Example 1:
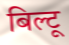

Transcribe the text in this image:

बिल्टू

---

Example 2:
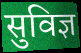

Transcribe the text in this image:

सुविज्ञ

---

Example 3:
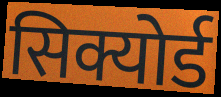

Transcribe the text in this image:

सिक्योर्ड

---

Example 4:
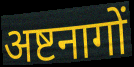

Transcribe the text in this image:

अष्टनागों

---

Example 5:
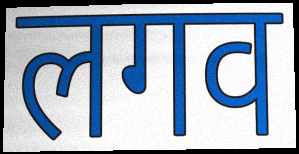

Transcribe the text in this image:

लगव